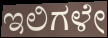
ಇಲಿಗಳೇ